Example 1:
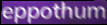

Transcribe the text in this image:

eppothum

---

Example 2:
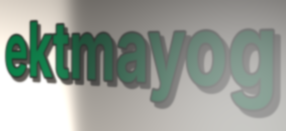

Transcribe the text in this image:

ektmayog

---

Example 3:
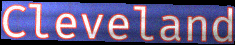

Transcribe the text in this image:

Cleveland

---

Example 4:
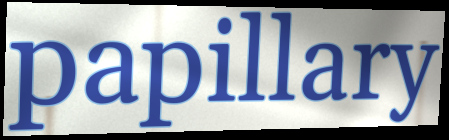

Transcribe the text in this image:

papillary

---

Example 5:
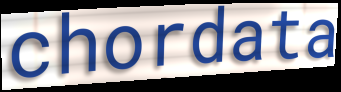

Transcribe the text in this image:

chordata